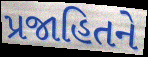
પ્રજાહિતને